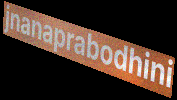
jnanaprabodhini